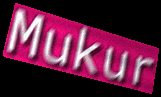
Mukur